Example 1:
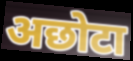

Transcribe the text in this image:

अछोटा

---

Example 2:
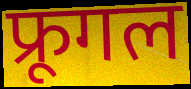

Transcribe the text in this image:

फ्रूगल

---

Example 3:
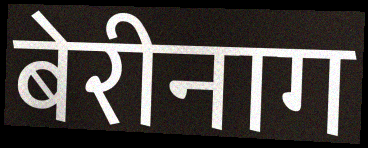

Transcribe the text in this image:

बेरीनाग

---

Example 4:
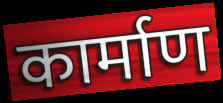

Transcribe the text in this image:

कार्माण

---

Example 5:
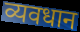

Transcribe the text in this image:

व्यवधान